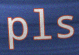
pls